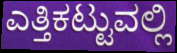
ಎತ್ತಿಕಟ್ಟುವಲ್ಲಿ